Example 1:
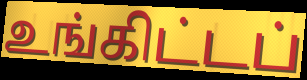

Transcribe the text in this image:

உங்கிட்டப்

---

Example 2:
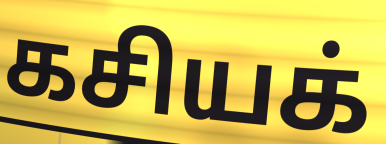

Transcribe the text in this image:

கசியக்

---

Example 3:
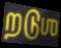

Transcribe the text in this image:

றடுஶ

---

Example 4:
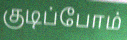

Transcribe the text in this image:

குடிப்போம்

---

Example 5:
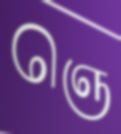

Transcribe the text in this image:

ஞெ